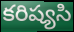
కరిష్యసి